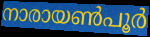
നാരായൺപൂർ